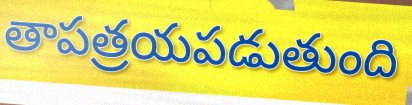
తాపత్రయపడుతుంది